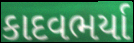
કાદવભર્યા